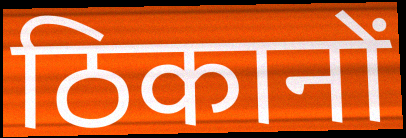
ठिकानों